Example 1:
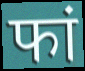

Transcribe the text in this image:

फां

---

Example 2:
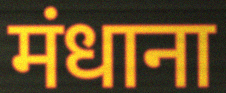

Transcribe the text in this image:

मंधाना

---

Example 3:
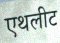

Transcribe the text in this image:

एथलीट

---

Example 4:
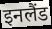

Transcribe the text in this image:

इनलैंड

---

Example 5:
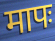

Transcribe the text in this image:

मापः